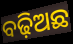
ବଢ଼ିଅଛ